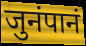
जुनंपानं